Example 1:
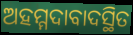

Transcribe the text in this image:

ଅହମ୍ମଦାବାଦସ୍ଥିତ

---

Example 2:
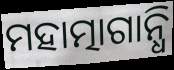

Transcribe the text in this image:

ମହାତ୍ମାଗାନ୍ଧି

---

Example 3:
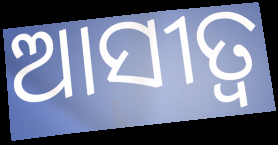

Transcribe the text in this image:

ଆସୀତ୍ବ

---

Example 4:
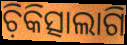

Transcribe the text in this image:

ଚ଼ିକିତ୍ସାଲାଗି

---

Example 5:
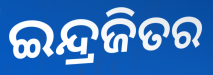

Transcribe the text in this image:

ଇନ୍ଦ୍ରଜିତର